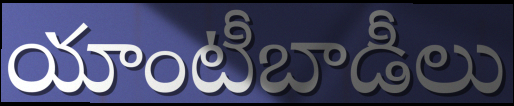
యాంటీబాడీలు